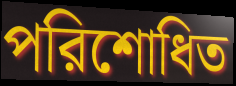
পরিশোধিত